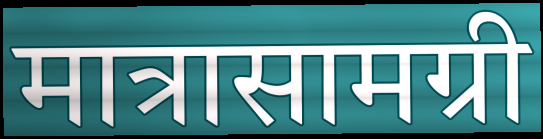
मात्रासामग्री